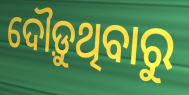
ଦୌଡ଼ୁଥିବାରୁ